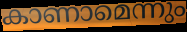
കാണാമെന്നും